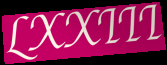
LXXIII